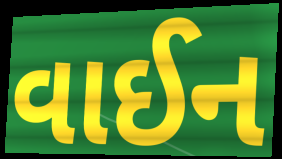
વાઈન